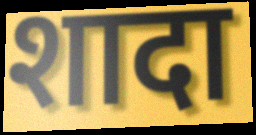
शादा